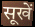
सूखें